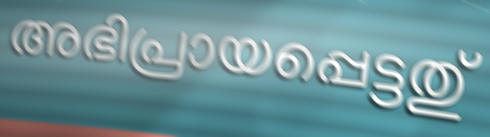
അഭിപ്രായപ്പെട്ടതു്